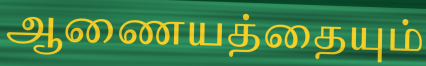
ஆணையத்தையும்